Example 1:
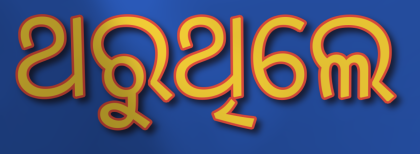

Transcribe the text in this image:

ଥରୁଥିଲେ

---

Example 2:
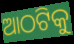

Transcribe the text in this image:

ଆଠଟିକୁ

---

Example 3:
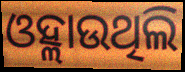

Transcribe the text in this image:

ଓହ୍ଲାଉଥିଲି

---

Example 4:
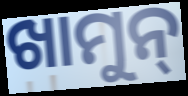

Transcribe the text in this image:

ଖାମୁନ୍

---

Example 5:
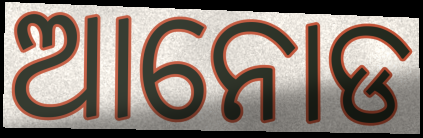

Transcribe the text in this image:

ଆନୋଡ